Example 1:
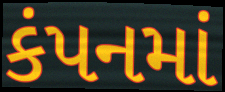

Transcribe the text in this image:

કંપનમાં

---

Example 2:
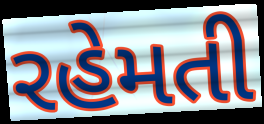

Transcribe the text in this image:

રહેમતી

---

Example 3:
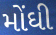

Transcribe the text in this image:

મોંઘી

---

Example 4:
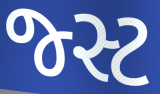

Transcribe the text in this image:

જ્સ્ટ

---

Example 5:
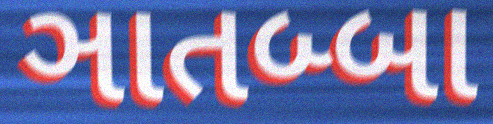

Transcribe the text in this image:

ઞાતબ્બા